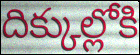
దిక్కుల్లోకి